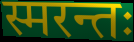
स्मरन्तः